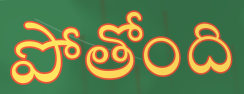
పోతోంది